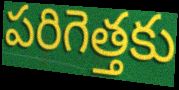
పరిగెత్తకు